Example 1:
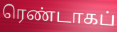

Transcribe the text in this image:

ரெண்டாகப்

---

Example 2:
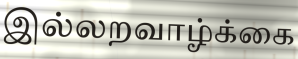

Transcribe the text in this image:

இல்லறவாழ்க்கை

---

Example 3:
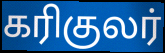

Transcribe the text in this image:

கரிகுலர்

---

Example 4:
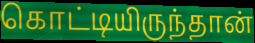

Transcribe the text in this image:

கொட்டியிருந்தான்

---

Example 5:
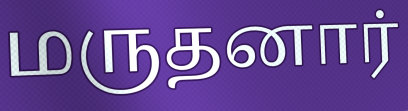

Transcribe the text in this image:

மருதனார்